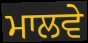
ਮਾਲਵੇ